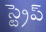
స్ట్రెప్